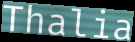
Thalia